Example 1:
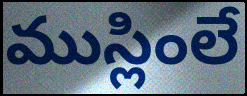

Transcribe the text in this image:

ముస్లింలే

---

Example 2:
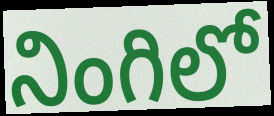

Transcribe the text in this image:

నింగిలో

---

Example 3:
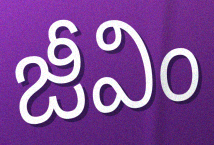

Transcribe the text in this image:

జీవిం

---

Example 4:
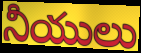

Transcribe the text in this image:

నీయులు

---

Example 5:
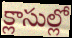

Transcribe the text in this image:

క్లాసుల్లో